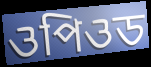
ওপিওড